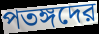
পতঙ্গদের